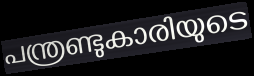
പന്ത്രണ്ടുകാരിയുടെ